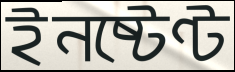
ইনষ্টেণ্ট